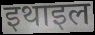
इथाइल